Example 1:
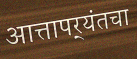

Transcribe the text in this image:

आत्तापर्यंतचा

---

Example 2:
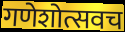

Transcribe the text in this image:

गणेशोत्सवच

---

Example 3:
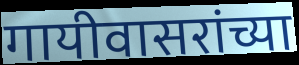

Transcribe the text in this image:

गायीवासरांच्या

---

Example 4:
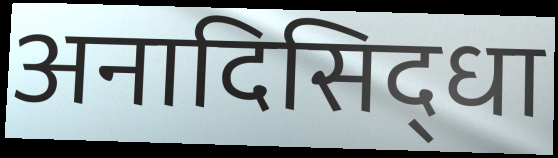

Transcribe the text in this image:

अनादिसिद्धा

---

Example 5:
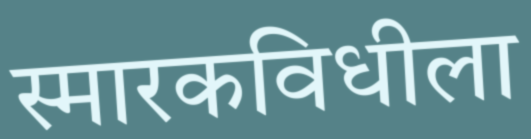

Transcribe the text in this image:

स्मारकविधीला